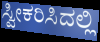
ಸ್ವೀಕರಿಸಿದಲ್ಲಿ